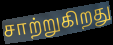
சாற்றுகிறது